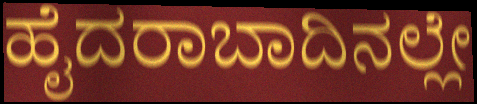
ಹೈದರಾಬಾದಿನಲ್ಲೇ